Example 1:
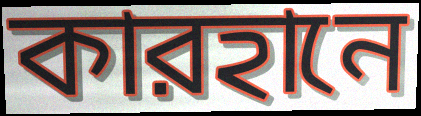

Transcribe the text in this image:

কারহানে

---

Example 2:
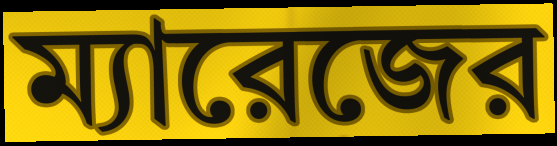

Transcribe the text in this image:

ম্যারেজের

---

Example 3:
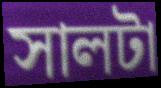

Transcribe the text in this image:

সালটা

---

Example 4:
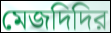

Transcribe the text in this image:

মেজদিদির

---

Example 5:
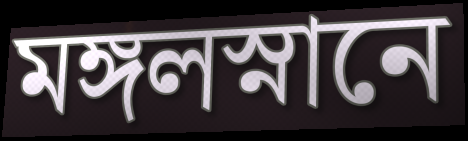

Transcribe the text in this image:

মঙ্গলস্নানে